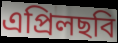
এপ্রিলছবি